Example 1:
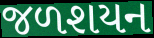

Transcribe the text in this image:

જળશયન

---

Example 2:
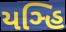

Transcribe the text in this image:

યઞ્હિ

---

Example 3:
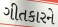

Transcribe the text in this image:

ગીતકારને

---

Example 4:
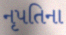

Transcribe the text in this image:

નૃપતિના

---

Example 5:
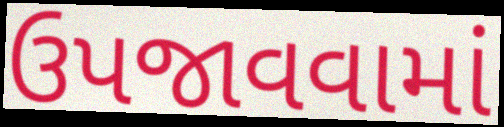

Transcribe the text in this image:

ઉપજાવવામાં